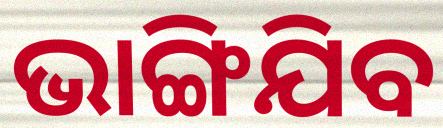
ଭାଙ୍ଗିଯିବ